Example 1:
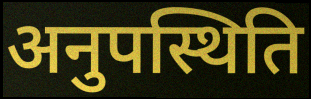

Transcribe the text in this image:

अनुपस्थिति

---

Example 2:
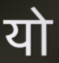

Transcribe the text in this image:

यो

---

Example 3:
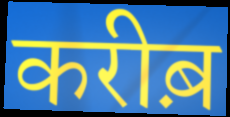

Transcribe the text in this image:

करीब़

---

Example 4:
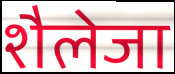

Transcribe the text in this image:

शैलेजा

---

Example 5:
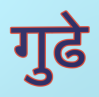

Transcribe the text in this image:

गुढे